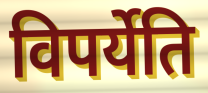
विपर्येति